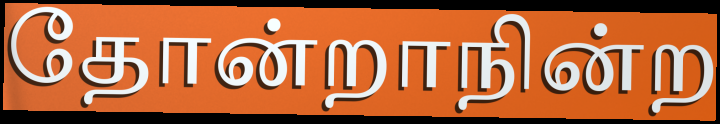
தோன்றாநின்ற